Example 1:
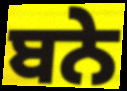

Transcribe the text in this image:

ਬਨੇ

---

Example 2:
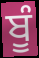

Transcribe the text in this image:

ਬੂੰ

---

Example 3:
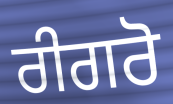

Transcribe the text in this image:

ਰੀਗਰੋ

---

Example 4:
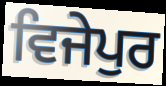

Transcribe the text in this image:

ਵਿਜੇਪੁਰ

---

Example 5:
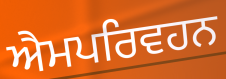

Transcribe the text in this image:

ਐਮਪਰਿਵਹਨ